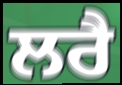
ਲਰੈ